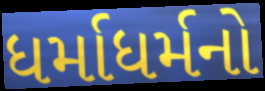
ધર્માધર્મનો